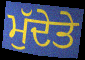
ਮੁੱਦੇਤੇ